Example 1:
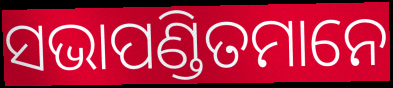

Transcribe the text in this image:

ସଭାପଣ୍ଡିତମାନେ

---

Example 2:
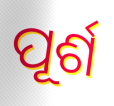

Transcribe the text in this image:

ପୂର୍ଶ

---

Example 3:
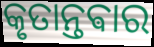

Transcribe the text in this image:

କୃତାନ୍ତଵାର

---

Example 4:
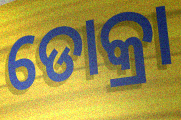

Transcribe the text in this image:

ଡୋକ୍ରା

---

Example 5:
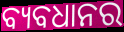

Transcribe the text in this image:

ବ୍ୟବଧାନର